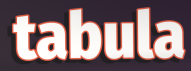
tabula